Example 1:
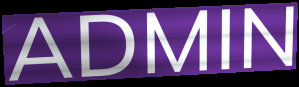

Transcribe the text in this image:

ADMIN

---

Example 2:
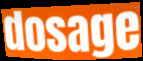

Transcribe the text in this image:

dosage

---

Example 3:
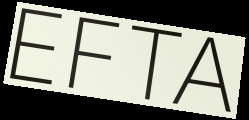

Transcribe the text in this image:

EFTA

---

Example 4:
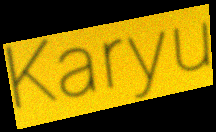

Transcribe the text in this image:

Karyu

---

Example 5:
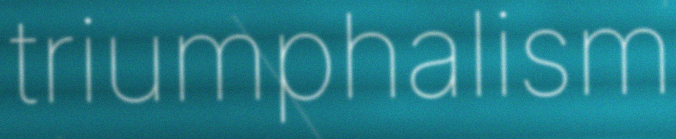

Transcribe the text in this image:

triumphalism